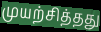
முயற்சித்தது